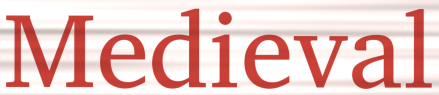
Medieval